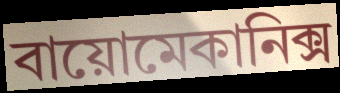
বায়োমেকানিক্স